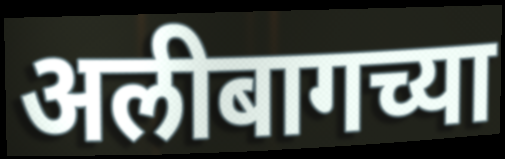
अलीबागच्या